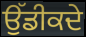
ਉੱਡੀਕਦੇ